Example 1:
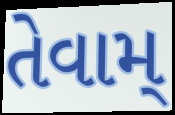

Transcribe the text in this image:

તેવામ્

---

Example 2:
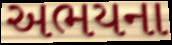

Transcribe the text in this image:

અભયના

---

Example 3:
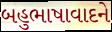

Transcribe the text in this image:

બહુભાષાવાદને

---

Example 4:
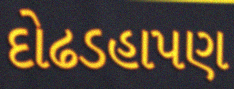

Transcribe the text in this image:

દોઢડહાપણ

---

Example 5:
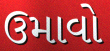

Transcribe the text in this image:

ઉમાવો